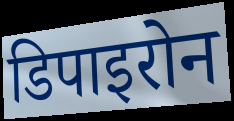
डिपाइरोन